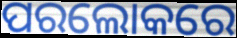
ପରଲୋକରେ